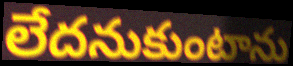
లేదనుకుంటాను